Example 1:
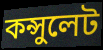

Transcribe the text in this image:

কন্সুলেট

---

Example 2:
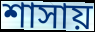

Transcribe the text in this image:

শাসায়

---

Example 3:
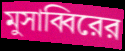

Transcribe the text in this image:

মুসাব্বিরের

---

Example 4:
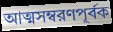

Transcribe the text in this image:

আত্মসম্বরণপূর্বক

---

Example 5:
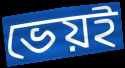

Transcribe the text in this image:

ভেয়ই